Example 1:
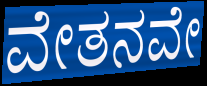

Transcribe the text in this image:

ವೇತನವೇ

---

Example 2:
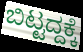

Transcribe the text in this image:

ಬಿಟ್ಟದ್ದಕ್ಕೆ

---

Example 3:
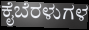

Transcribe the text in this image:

ಕೈಬೆರಳುಗಳ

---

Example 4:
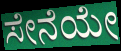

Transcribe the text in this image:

ಸೇನೆಯೇ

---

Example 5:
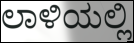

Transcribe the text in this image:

ಲಾಳಿಯಲ್ಲಿ